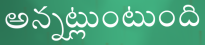
అన్నట్లుంటుంది